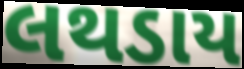
લથડાય